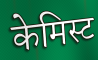
केमिस्ट